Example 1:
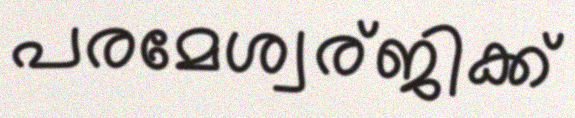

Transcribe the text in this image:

പരമേശ്വര്ജിക്ക്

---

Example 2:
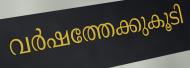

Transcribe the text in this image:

വർഷത്തേക്കുകൂടി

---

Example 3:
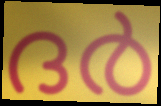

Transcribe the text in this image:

ദർ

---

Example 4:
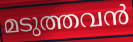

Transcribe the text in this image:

മടുത്തവൻ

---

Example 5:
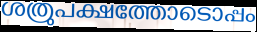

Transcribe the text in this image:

ശത്രുപക്ഷത്തോടൊപ്പം